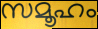
സമൂഹം